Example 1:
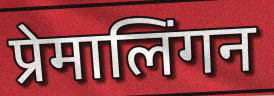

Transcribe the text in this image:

प्रेमालिंगन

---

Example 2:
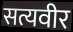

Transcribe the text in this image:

सत्यवीर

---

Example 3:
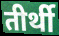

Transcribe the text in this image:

तीर्थी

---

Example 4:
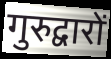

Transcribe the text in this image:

गुरुद्वारों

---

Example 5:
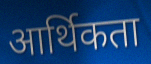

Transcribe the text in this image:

आर्थिकता